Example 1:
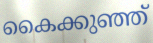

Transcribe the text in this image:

കൈക്കുഞ്ഞ്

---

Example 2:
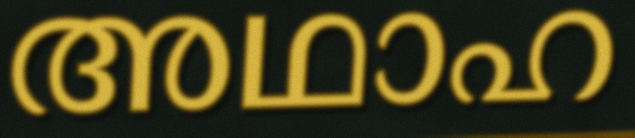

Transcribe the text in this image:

അഥാഹ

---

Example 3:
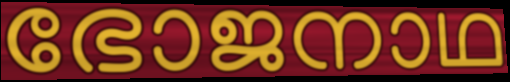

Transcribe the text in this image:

ഭോജനാഥ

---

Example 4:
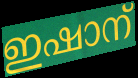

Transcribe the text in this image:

ഇഷാന്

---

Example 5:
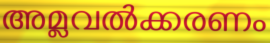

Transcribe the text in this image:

അമ്ലവൽക്കരണം